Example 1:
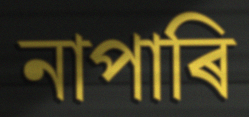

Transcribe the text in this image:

নাপাৰি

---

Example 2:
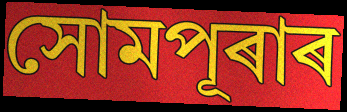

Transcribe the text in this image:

সোমপূৰাৰ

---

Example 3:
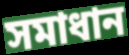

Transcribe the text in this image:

সমাধান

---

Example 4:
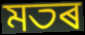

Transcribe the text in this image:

মতৰ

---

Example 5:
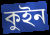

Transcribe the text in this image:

কুইন